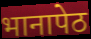
भानापेठ